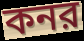
কনর